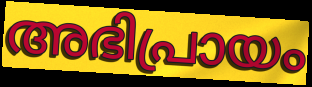
അഭിപ്രായം